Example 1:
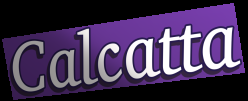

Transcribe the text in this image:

Calcatta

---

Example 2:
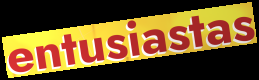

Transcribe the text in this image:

entusiastas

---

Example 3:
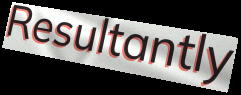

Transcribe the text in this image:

Resultantly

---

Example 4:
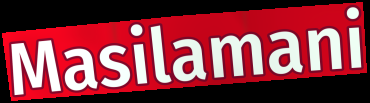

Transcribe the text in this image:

Masilamani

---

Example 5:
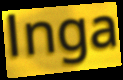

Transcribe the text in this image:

Inga